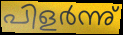
പിളർന്നു്